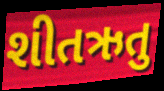
શીતઋતુ